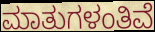
ಮಾತುಗಳಂತಿವೆ